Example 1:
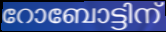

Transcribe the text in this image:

റോബോട്ടിന്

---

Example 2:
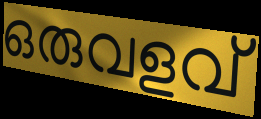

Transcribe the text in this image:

ഒരുവളവ്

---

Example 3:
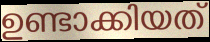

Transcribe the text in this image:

ഉണ്ടാക്കിയത്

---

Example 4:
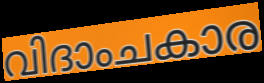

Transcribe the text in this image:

വിദാംചകാര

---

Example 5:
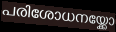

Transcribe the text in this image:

പരിശോധനയ്ക്കോ